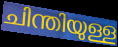
ചിന്തിയുള്ള